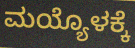
ಮಯ್ಯೊಳಕ್ಕೆ